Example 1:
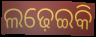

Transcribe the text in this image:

ଲଢ଼େଇକି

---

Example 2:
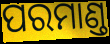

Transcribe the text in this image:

ପରମାଣ୍ଡ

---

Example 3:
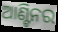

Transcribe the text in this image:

ଆଣ୍ଟିନର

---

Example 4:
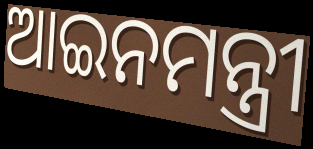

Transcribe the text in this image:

ଆଇନମନ୍ତ୍ରୀ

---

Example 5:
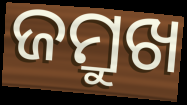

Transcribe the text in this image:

ଜମ୍ରୁଖ